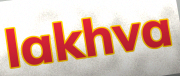
lakhva